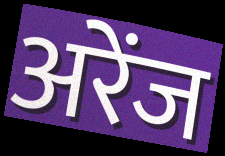
अरेंज